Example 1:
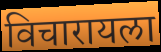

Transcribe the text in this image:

विचारायला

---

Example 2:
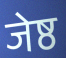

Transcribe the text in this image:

जेष्ठ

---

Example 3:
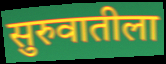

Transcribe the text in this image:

सुरुवातीला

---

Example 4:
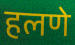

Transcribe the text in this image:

हलणे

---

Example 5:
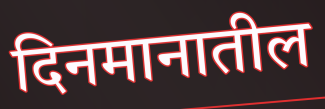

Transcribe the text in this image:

दिनमानातील